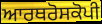
ਆਰਥਰੋਸਕੋਪੀ